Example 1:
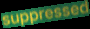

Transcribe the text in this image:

suppressed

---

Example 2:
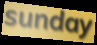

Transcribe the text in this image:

sunday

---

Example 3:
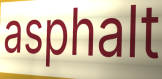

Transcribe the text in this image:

asphalt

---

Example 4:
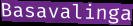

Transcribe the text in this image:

Basavalinga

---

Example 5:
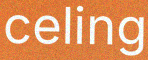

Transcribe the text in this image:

celing